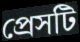
প্রেসটি